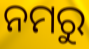
ନମରୁ